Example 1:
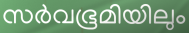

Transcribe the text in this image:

സർവഭൂമിയിലും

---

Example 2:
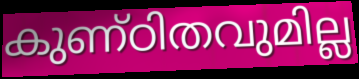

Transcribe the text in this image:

കുണ്ഠിതവുമില്ല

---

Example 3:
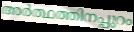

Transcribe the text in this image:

അർത്ഥത്തിനപ്പുറം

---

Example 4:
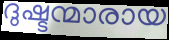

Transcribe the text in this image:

ദുഷ്ടന്മാരായ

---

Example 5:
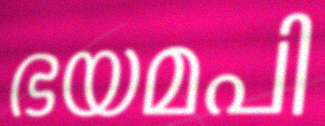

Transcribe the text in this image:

ഭയമപി